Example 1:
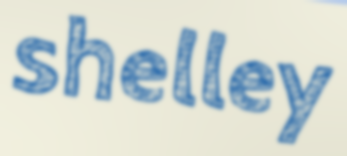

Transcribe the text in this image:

shelley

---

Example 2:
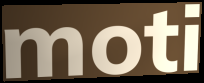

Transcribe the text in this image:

moti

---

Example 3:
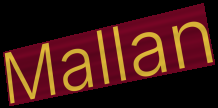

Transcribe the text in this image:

Mallan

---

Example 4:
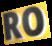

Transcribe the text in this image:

RO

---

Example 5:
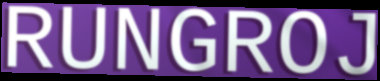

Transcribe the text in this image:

RUNGROJ